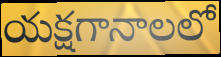
యక్షగానాలలో